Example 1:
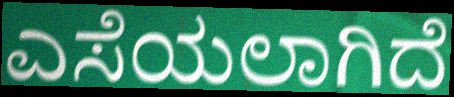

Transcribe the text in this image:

ಎಸೆಯಲಾಗಿದೆ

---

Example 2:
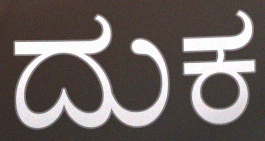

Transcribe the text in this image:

ದುಕ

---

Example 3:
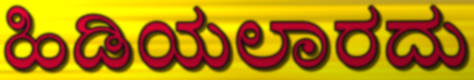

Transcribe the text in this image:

ಹಿಡಿಯಲಾರದು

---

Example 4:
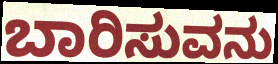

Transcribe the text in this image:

ಬಾರಿಸುವನು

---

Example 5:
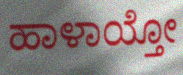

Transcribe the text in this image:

ಹಾಳಾಯ್ತೋ